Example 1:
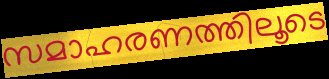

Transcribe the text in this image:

സമാഹരണത്തിലൂടെ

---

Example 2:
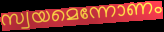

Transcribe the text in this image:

സ്വയമെന്നോണം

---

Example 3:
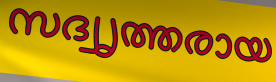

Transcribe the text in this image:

സദ്വൃത്തരായ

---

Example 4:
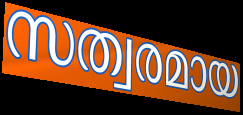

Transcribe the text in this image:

സത്വരമായ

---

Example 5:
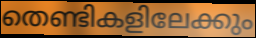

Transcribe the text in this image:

തെണ്ടികളിലേക്കും